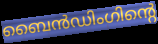
ബൈൻഡിംഗിന്റെ